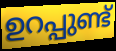
ഉറപ്പുണ്ട്